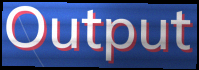
Output